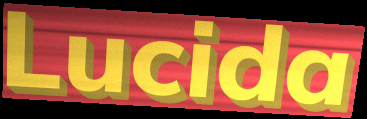
Lucida